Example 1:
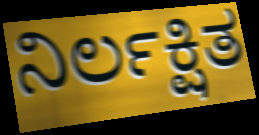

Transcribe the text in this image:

ನಿರ್ಲಕ್ಷಿತ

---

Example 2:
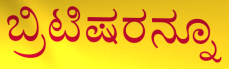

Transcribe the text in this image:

ಬ್ರಿಟಿಷರನ್ನೂ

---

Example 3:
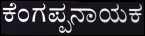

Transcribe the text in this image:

ಕೆಂಗಪ್ಪನಾಯಕ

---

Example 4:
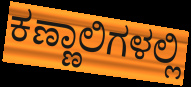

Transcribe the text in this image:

ಕಣ್ಣಾಲಿಗಳಲ್ಲಿ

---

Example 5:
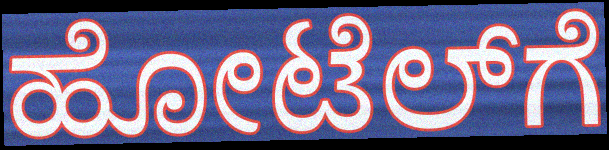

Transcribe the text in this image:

ಹೋಟೆಲ್‌ಗೆ